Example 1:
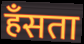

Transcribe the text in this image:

हॅंसता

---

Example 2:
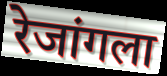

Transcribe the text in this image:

रेजांगला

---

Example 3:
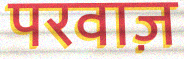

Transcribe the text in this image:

परवाज़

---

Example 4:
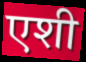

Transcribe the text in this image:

एशी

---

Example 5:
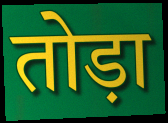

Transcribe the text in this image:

तोड़ा